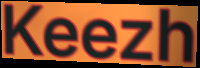
Keezh